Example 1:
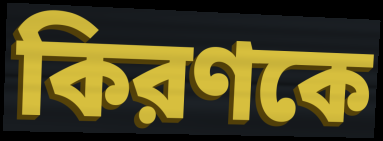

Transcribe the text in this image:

কিরণকে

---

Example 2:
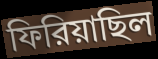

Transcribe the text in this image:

ফিরিয়াছিল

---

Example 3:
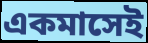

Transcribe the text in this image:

একমাসেই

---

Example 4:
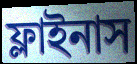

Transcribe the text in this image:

ফ্লাইনাস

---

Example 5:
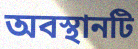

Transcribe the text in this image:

অবস্থানটি